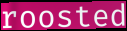
roosted